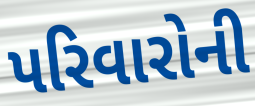
પરિવારોની